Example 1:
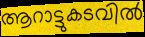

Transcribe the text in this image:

ആറാട്ടുകടവിൽ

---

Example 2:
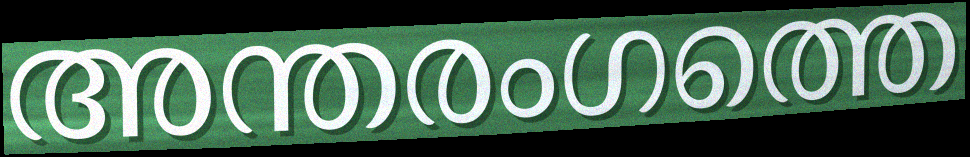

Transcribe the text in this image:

അന്തരംഗത്തെ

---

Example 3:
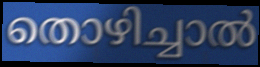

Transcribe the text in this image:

തൊഴിച്ചാൽ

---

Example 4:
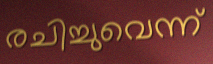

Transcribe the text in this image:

രചിച്ചുവെന്ന്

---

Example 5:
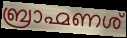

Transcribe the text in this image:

ബ്രാഹ്മണശ്